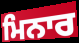
ਮਿਨਾਰ